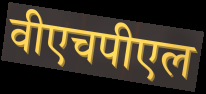
वीएचपीएल